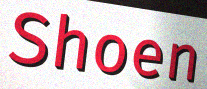
Shoen